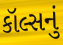
કૉલ્સનું